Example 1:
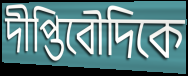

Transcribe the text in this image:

দীপ্তিবৌদিকে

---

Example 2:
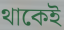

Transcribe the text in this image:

থাকেই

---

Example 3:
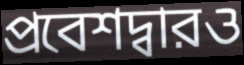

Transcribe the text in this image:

প্রবেশদ্বারও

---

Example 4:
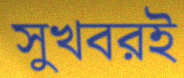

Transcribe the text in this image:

সুখবরই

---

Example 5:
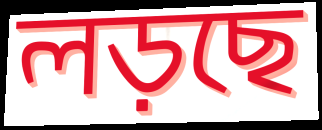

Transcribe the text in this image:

লড়ছে